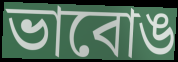
ভাবোঙ